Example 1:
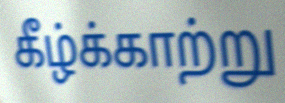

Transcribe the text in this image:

கீழ்க்காற்று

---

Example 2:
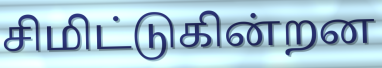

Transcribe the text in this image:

சிமிட்டுகின்றன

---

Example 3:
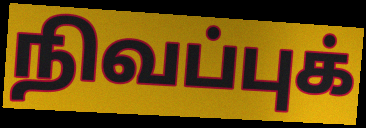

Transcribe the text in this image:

நிவப்புக்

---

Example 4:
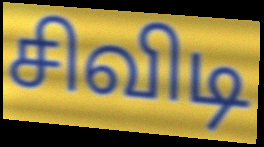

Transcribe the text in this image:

சிவிடி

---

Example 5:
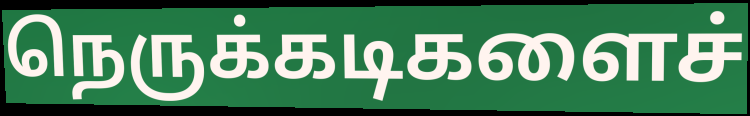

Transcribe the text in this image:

நெருக்கடிகளைச்